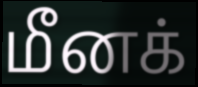
மீனக்